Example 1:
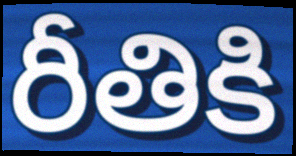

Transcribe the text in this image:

రీతికి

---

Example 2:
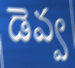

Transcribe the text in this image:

డెవ్వ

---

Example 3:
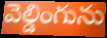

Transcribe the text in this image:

వెల్డింగును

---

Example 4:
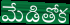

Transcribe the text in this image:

మేడితోక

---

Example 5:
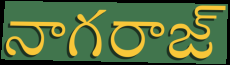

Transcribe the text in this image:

నాగరాజ్